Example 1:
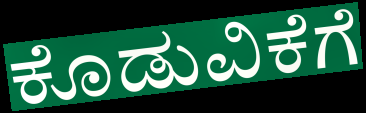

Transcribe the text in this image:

ಕೊಡುವಿಕೆಗೆ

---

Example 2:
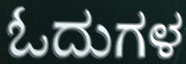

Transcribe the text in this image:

ಓದುಗಳ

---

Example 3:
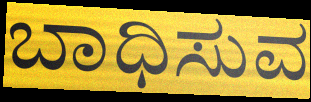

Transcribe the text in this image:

ಬಾಧಿಸುವ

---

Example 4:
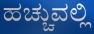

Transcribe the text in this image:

ಹಚ್ಚುವಲ್ಲಿ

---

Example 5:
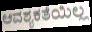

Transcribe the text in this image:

ಆವಶ್ಯಕತೆಯಿಲ್ಲ